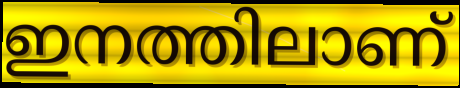
ഇനത്തിലാണ്